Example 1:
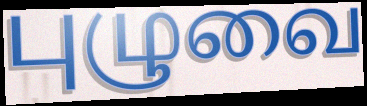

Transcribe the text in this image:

புழுவை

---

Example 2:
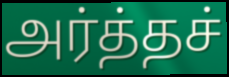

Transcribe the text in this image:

அர்த்தச்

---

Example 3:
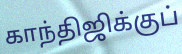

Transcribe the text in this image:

காந்திஜிக்குப்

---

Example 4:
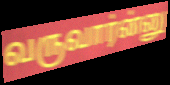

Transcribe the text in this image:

வருவார்ன்னு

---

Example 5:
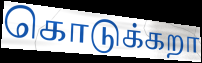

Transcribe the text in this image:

கொடுக்கறா